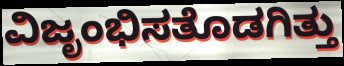
ವಿಜೃಂಭಿಸತೊಡಗಿತ್ತು